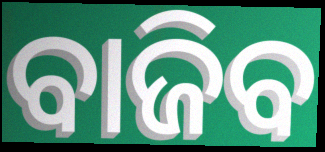
ବାଜିବ